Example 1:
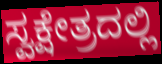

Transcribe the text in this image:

ಸ್ವಕ್ಷೇತ್ರದಲ್ಲಿ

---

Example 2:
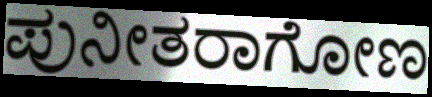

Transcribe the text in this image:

ಪುನೀತರಾಗೋಣ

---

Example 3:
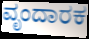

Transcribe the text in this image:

ವೃಂದಾರಕ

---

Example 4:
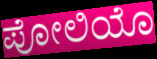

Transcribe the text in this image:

ಪೋಲಿಯೊ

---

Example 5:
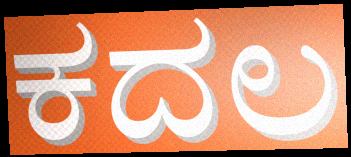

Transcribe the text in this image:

ಕದಲ